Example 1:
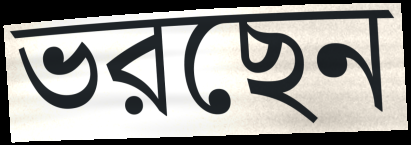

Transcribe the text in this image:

ভরছেন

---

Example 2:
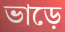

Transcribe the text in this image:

ভাড়ে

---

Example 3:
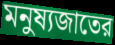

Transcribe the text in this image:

মনুষ্যজাতের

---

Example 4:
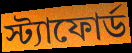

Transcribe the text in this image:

স্ট্যাফোর্ড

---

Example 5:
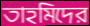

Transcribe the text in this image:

তাহমিদের